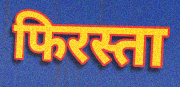
फिरस्ता